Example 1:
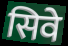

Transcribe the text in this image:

सिवे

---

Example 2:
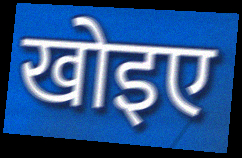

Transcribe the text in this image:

खोइए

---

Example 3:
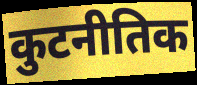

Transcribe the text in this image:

कुटनीतिक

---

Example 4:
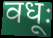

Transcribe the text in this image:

वधूः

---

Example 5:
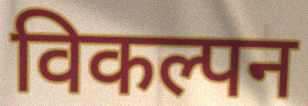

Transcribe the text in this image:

विकल्पन